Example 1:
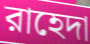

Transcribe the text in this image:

রাহেদা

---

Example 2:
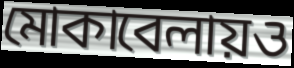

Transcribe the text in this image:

মোকাবেলায়ও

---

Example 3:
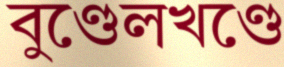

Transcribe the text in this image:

বুণ্ডেলখণ্ডে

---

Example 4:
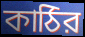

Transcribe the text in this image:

কাঠির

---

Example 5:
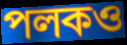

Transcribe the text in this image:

পলকও